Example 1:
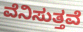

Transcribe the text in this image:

ವೆನಿಸುತ್ತವೆ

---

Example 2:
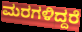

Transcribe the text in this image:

ಮರಗಳಿದ್ದರೆ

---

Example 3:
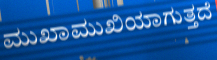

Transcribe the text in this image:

ಮುಖಾಮುಖಿಯಾಗುತ್ತದೆ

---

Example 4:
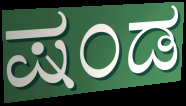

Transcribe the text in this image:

ಷಂಡ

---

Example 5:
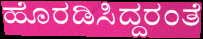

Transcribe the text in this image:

ಹೊರಡಿಸಿದ್ದರಂತೆ